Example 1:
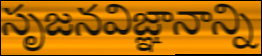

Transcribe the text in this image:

సృజనవిజ్ఞానాన్ని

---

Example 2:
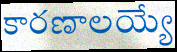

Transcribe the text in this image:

కారణాలయ్యే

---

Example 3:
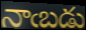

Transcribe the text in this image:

నాఁబడు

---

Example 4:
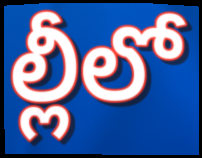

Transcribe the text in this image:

ల్లీలో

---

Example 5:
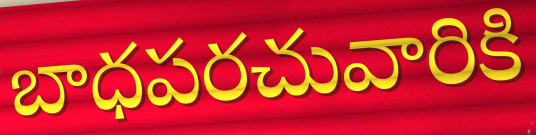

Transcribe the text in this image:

బాధపరచువారికి